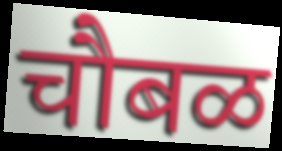
चौबळ